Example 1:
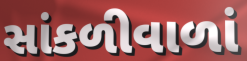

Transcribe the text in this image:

સાંકળીવાળાં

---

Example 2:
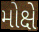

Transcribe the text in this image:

મોક્ષે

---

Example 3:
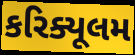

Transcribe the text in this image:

કરિક્યૂલમ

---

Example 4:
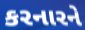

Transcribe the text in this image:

કરનારને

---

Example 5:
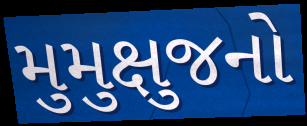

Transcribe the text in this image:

મુમુક્ષુજનો